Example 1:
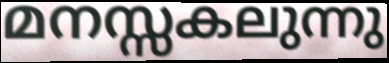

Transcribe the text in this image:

മനസ്സകലുന്നു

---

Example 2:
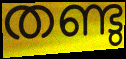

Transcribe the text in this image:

തണ്ടു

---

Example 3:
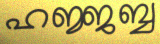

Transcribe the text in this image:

ഹജ്ജബ്ബ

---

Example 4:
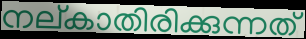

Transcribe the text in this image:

നല്കാതിരിക്കുന്നത്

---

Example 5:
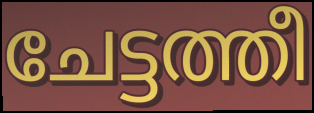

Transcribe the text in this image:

ചേട്ടത്തീ